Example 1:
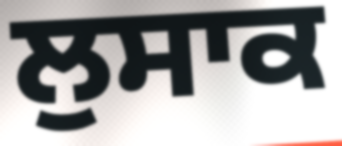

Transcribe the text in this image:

ਲੁਸਾਕ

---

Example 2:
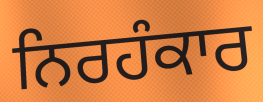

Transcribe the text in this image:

ਨਿਰਹੰਕਾਰ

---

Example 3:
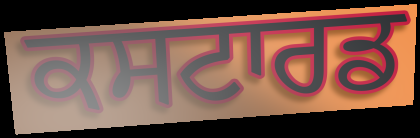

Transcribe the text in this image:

ਕਸਟਾਰਡ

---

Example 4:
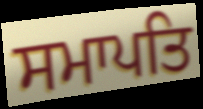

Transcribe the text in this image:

ਸਮਾਪਤਿ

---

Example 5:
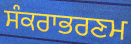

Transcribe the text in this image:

ਸੰਕਰਾਭਰਣਮ